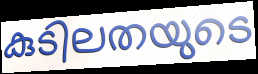
കുടിലതയുടെ